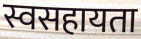
स्वसहायता